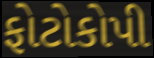
ફોટોકોપી